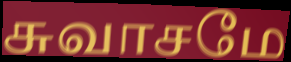
சுவாசமே